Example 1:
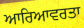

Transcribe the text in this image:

ਆਰਿਆਵਰਤਾ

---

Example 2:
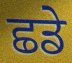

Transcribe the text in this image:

ਛਡੇ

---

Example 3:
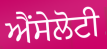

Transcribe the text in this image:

ਐਂਸੇਲੋਟੀ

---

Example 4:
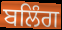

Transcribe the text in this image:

ਬਲਿੰਗ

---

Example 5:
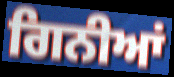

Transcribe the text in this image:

ਗਿਨੀਆਂ